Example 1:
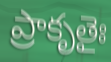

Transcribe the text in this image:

ప్రాకృతైః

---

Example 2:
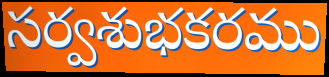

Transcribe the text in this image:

సర్వశుభకరము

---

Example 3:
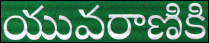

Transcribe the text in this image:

యువరాణికి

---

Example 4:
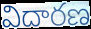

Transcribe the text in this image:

విదారణ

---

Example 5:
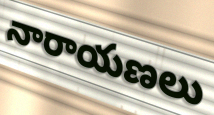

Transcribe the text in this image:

నారాయణలు